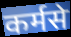
कर्मसे